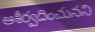
ఆశీర్వదించునని